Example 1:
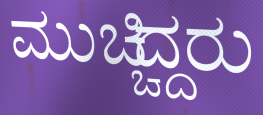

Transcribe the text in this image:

ಮುಚ್ಚಿದ್ದರು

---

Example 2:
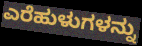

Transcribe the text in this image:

ಎರೆಹುಳುಗಳನ್ನು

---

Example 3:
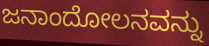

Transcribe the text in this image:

ಜನಾಂದೋಲನವನ್ನು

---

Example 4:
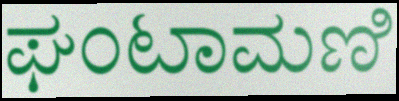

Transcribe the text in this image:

ಘಂಟಾಮಣಿ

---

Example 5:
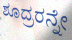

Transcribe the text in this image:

ಶೂದ್ರರನ್ನೇ